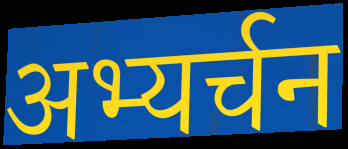
अभ्यर्चन